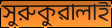
সুৰুকুৱালাই